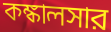
কঙ্কালসার